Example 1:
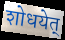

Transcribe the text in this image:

शोधयेत्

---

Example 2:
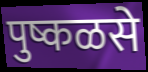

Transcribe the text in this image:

पुष्कळसे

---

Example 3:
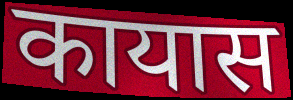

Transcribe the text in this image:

कायास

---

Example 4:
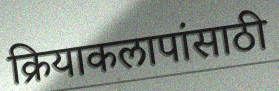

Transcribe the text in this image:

क्रियाकलापांसाठी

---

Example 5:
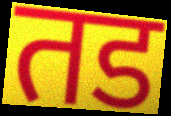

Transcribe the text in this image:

तड